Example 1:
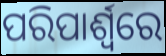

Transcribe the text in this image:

ପରିପାର୍ଶ୍ୱରେ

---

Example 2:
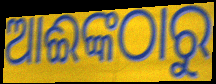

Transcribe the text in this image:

ଆଈଙ୍କଠାରୁ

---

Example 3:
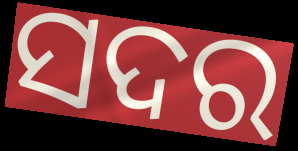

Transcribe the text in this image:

ସଦର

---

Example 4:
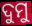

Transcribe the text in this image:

ଦୁମୁ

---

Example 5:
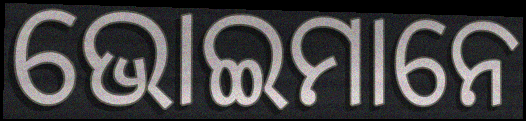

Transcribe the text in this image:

ଭୋଇମାନେ